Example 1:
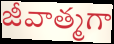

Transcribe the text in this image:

జీవాత్మగా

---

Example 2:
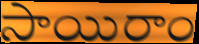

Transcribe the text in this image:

సాయిరాం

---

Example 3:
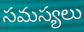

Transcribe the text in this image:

సమస్యలు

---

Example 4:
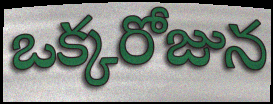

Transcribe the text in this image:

ఒక్కరోజున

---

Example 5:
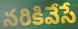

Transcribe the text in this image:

నరికివేసే